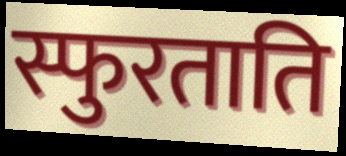
स्फुरताति